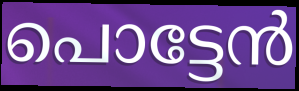
പൊട്ടേൻ